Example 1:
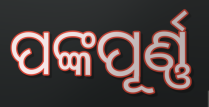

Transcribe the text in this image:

ପଙ୍କପୂର୍ଣ୍ଣ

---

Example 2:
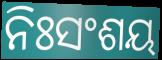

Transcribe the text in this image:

ନିଃସଂଶୟ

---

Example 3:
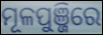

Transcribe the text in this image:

ମୂଳପୁଞ୍ଜିରେ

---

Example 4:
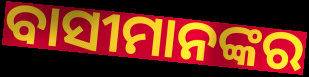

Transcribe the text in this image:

ବାସୀମାନଙ୍କର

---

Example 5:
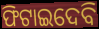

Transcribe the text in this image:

ଫିଟାଇଦେବି